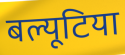
बल्यूटिया